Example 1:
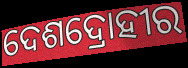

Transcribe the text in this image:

ଦେଶଦ୍ରୋହୀର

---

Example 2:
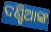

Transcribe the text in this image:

ଦଣ୍ଡିଆଙ୍କ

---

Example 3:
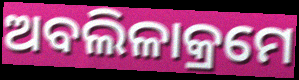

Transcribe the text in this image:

ଅବଲିଳାକ୍ରମେ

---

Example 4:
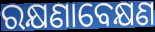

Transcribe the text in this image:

ରକ୍ଷଣାବେକ୍ଷଣ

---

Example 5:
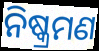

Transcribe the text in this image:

ନିଷ୍କ୍ରମଣ